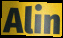
Alin